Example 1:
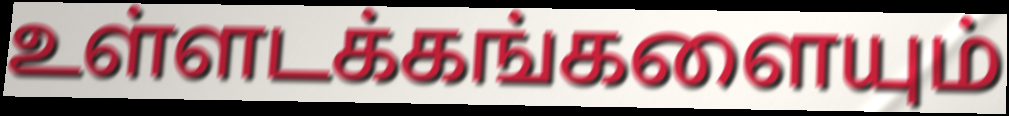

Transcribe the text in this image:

உள்ளடக்கங்களையும்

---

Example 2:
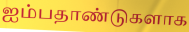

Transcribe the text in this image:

ஐம்பதாண்டுகளாக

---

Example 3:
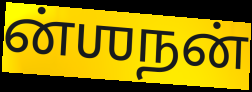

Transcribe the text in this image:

ன்ஶநன்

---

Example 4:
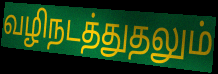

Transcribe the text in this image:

வழிநடத்துதலும்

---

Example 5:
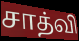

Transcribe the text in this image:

சாத்வி